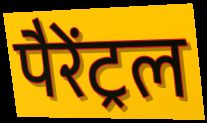
पैरेंट्रल